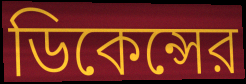
ডিকেন্সের